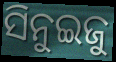
ସିନୁଇଜୁ